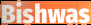
Bishwas